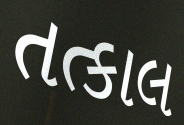
તત્કાલ